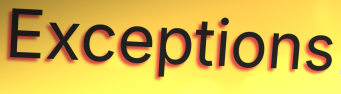
Exceptions